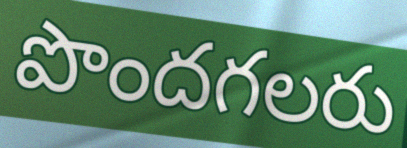
పొందగలరు